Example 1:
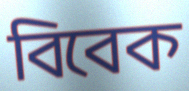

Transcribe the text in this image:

বিবেক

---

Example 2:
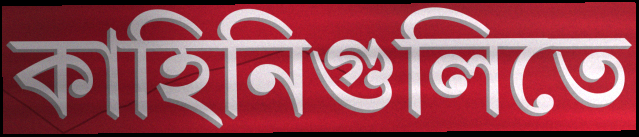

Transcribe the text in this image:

কাহিনিগুলিতে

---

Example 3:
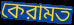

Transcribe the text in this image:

কেরামত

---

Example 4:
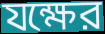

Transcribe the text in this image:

যক্ষের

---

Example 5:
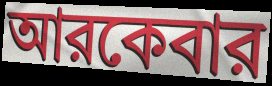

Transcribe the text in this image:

আরকেবার